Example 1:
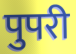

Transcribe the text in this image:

पुपरी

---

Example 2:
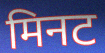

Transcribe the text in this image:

मिनट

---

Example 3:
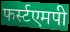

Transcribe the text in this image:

फर्स्टएमपी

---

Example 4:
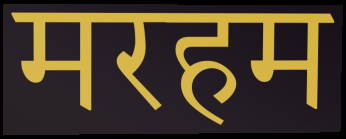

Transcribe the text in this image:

मरहम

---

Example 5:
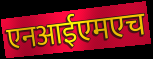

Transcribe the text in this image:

एनआईएमएच